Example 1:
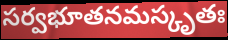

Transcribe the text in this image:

సర్వభూతనమస్కృతః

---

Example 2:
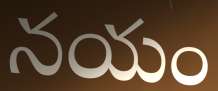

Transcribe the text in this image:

నయం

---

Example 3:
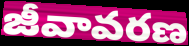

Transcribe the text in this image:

జీవావరణ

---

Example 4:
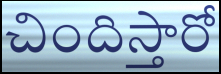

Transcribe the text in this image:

చిందిస్తారో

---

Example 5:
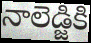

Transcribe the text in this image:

నాలెడ్జికి